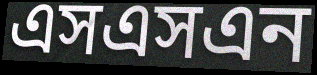
এসএসএন